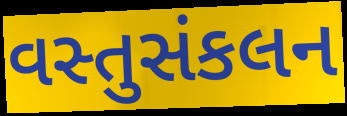
વસ્તુસંકલન